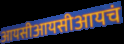
आयसीआयसीआयचं